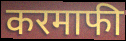
करमाफी